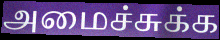
அமைச்சுக்க